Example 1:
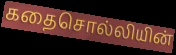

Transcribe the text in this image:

கதைசொல்லியின்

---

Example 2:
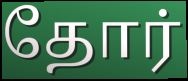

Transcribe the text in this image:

தோர்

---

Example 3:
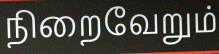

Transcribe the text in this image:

நிறைவேறும்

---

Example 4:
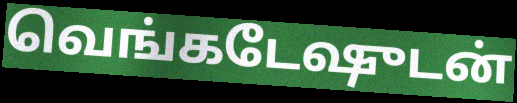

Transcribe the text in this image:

வெங்கடேஷுடன்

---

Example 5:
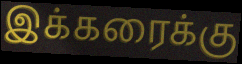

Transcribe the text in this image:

இக்கரைக்கு